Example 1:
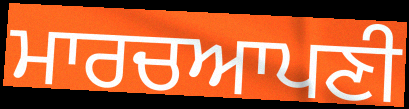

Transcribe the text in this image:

ਮਾਰਚਆਪਣੀ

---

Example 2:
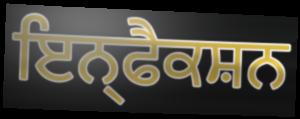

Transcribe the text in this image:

ਇਨ੍ਫੈਕਸ਼ਨ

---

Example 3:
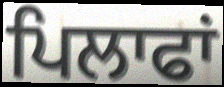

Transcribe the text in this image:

ਪਿਲਾਫਾਂ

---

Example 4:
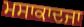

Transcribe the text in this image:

ਮਸਾਕਾਦਜਾ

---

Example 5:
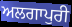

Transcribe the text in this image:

ਅਲਗਾਪੁਰੀ